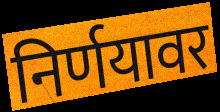
निर्णयावर